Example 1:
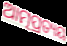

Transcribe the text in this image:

ଆତ୍ମପ୍ରତ୍ୟୟ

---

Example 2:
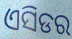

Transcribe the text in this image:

ଏସିଡର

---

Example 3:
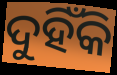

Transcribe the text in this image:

ଦୁହିଁକି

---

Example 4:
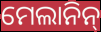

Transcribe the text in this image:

ମେଲାନିନ୍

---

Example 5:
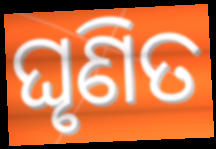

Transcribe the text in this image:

ଘୃଣିତ